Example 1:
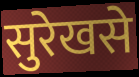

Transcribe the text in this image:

सुरेखसे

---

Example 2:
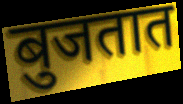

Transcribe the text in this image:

बुजतात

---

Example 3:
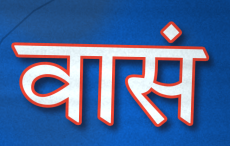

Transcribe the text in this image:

वासं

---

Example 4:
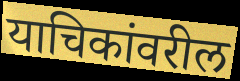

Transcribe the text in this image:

याचिकांवरील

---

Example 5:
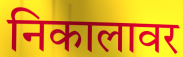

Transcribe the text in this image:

निकालावर